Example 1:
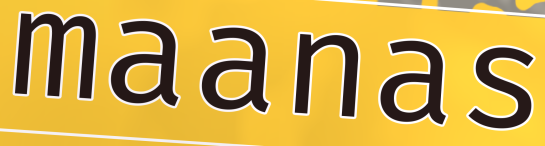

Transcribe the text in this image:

maanas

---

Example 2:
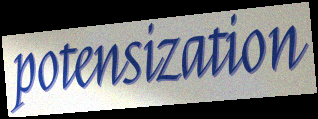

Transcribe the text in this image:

potensization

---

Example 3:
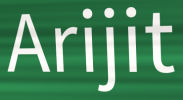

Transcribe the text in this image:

Arijit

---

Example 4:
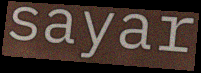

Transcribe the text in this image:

sayar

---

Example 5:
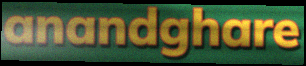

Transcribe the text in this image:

anandghare